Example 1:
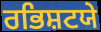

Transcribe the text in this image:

ਰਭਿਸ਼ਟਯੇ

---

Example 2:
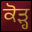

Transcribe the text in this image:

ਕੋੜ੍ਹ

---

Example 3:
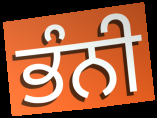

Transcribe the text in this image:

ਭੰਨੀ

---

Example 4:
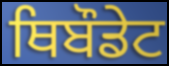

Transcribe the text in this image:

ਥਿਬੌਡੇਟ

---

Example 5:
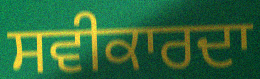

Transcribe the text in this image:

ਸਵੀਕਾਰਦਾ